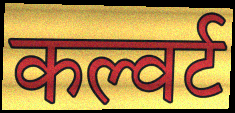
कल्वर्ट